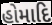
હોમાદિ